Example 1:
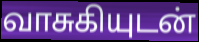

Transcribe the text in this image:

வாசுகியுடன்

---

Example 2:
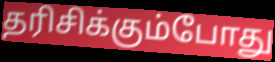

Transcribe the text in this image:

தரிசிக்கும்போது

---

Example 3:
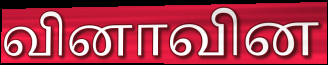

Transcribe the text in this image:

வினாவின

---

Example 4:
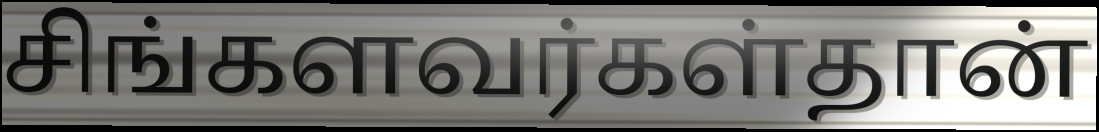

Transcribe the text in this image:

சிங்களவர்கள்தான்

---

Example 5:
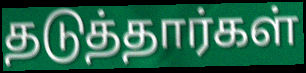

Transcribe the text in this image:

தடுத்தார்கள்